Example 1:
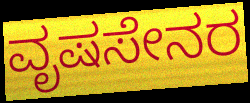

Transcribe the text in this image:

ವೃಷಸೇನರ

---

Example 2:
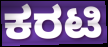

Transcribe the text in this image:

ಕರಟಿ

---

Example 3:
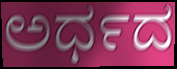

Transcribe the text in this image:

ಅರ್ಧದ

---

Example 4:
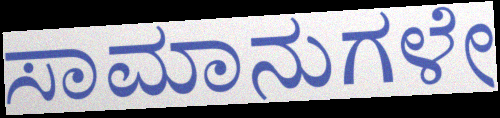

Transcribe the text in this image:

ಸಾಮಾನುಗಳೇ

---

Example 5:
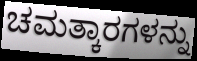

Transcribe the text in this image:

ಚಮತ್ಕಾರಗಳನ್ನು